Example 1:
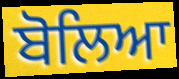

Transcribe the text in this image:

ਬੋਲਿਆ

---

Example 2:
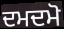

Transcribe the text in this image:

ਦਮਦਮੋ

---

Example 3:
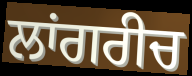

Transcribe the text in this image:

ਲਾਂਗਰੀਚ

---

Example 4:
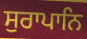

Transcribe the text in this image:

ਸੁਰਾਪਾਨਿ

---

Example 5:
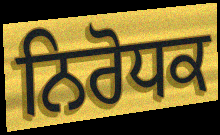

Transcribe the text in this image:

ਨਿਰੋਧਕ